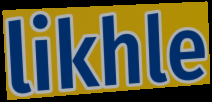
likhle